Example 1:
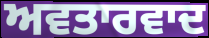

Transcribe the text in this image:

ਅਵਤਾਰਵਾਦ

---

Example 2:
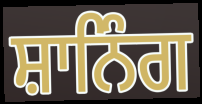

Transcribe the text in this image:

ਸ਼ਾਨਿੰਗ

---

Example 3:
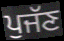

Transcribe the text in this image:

ਪੁਜੱਣ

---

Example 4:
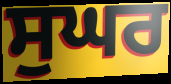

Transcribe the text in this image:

ਸੁਘਰ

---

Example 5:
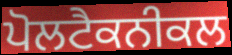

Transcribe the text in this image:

ਪੋਲਟੈਕਨੀਕਲ